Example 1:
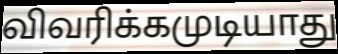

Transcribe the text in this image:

விவரிக்கமுடியாது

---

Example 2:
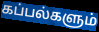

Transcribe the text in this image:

கப்பல்களும்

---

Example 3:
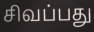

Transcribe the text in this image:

சிவப்பது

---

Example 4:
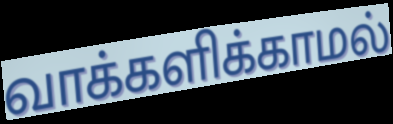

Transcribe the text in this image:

வாக்களிக்காமல்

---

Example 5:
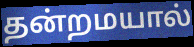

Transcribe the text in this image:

தன்றமயால்